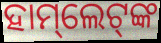
ହାମ୍‌ଲେଟ୍‌ଙ୍କ